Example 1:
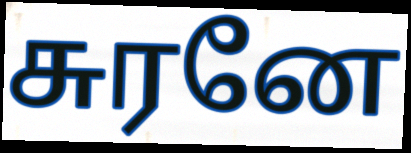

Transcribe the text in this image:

சுரனே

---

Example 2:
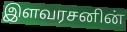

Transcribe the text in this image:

இளவரசனின்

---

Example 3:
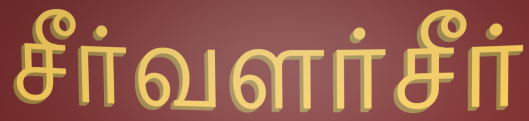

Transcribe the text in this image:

சீர்வளர்சீர்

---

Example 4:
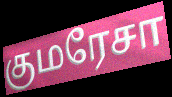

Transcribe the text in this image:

குமரேசா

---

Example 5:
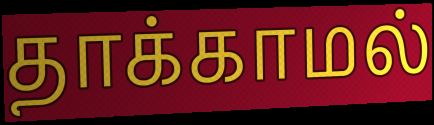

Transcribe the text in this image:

தாக்காமல்